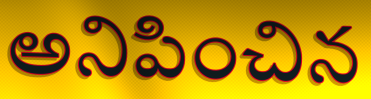
అనిపించిన